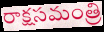
రాక్షసమంత్రి